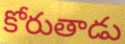
కోరుతాడు